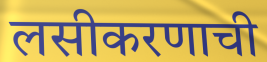
लसीकरणाची